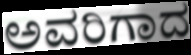
ಅವರಿಗಾದ